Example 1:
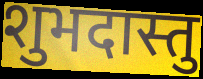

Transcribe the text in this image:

शुभदास्तु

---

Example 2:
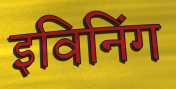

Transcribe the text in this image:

इविनिंग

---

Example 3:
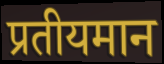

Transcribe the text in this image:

प्रतीयमान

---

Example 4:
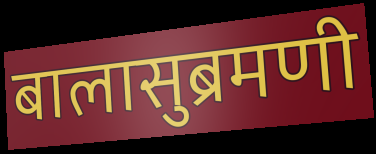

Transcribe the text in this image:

बालासुब्रमणी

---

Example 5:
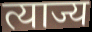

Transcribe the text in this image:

त्याज्य